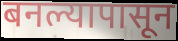
बनल्यापासून